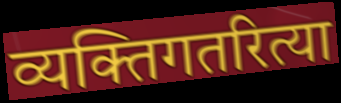
व्यक्तिगतरित्या